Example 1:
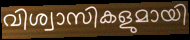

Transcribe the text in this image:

വിശ്വാസികളുമായി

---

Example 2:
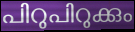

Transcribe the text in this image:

പിറുപിറുക്കും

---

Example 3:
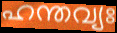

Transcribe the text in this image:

ഹന്തവ്യഃ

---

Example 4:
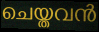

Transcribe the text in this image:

ചെയ്തവൻ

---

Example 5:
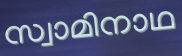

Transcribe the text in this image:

സ്വാമിനാഥ